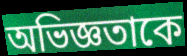
অভিজ্ঞতাকে